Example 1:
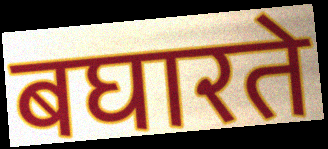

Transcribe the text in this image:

बघारते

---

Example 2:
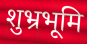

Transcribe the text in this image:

शुभ्रभूमि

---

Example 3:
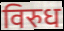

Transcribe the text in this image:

विरुध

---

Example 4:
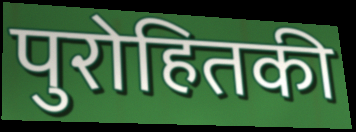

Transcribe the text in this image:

पुरोहितकी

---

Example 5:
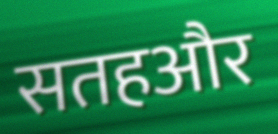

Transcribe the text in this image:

सतहऔर